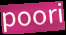
poori